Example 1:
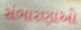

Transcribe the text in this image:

સંભારણાઓ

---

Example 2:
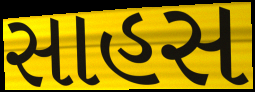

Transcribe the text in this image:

સાહસ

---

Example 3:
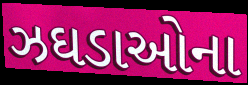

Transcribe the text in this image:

ઝઘડાઓના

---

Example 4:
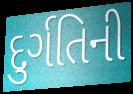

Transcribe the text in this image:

દુર્ગતિની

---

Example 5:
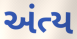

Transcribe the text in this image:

અંત્ય